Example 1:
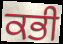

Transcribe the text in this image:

ਕਭੀ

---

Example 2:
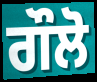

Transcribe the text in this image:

ਗੌਲੋ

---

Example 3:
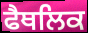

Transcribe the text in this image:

ਫੈਥਲਿਕ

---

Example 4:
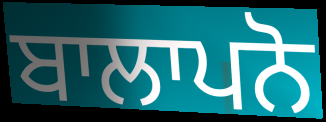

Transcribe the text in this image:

ਬਾਲਾਪਨੋ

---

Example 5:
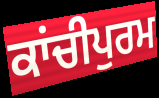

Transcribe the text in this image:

ਕਾਂਚੀਪੁਰਮ